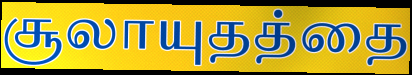
சூலாயுதத்தை